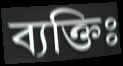
ব্যক্তিঃ